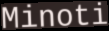
Minoti